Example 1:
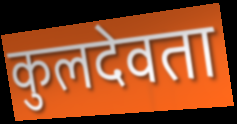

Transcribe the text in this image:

कुलदेवता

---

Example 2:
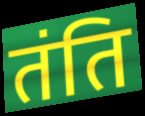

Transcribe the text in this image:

तंति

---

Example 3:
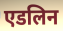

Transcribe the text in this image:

एडलिन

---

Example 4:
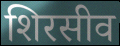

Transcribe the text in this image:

शिरसीव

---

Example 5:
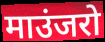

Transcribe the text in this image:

माउंजरो